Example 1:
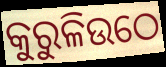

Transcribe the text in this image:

କୁରୁଳିଉଠେ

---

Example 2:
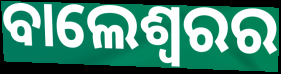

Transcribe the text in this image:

ବାଲେଶ୍ୱରର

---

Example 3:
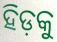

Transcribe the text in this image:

ହିଡ଼କୁ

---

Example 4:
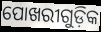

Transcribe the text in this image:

ପୋଖରୀଗୁଡ଼ିକ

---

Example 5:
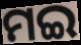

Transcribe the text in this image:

ମଇ